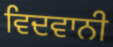
ਵਿਦਵਾਨੀ